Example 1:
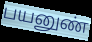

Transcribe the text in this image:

பயனுண்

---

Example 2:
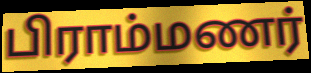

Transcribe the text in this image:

பிராம்மணர்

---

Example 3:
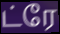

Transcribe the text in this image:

ட்ரே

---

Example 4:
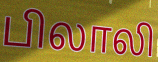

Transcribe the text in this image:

பிலாலி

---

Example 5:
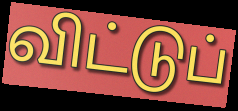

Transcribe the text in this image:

விட்டுப்